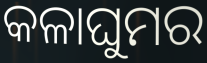
କଳାଘୁମର